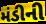
મંડીની